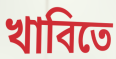
খাবিতে